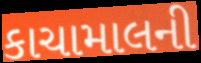
કાચામાલની